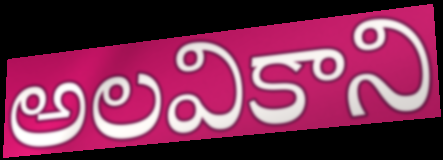
అలవికాని